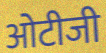
ओटीजी